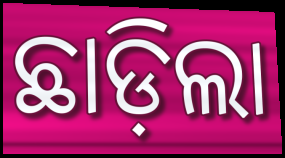
ଛାଡ଼ିଲା